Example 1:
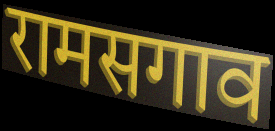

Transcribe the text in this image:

रामसगाव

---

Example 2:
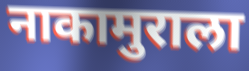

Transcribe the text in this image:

नाकामुराला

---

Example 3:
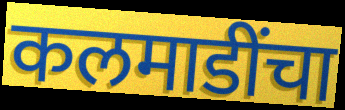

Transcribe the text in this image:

कलमाडींचा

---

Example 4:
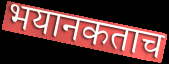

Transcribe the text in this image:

भयानकताच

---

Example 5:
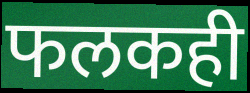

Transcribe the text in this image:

फलकही